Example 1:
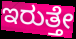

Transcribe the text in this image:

ಇರುತ್ತೇ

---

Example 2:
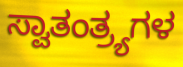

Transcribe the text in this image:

ಸ್ವಾತಂತ್ರ್ಯಗಳ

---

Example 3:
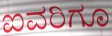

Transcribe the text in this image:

ಐವರಿಗೂ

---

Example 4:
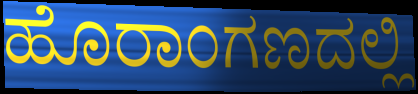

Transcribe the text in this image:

ಹೊರಾಂಗಣದಲ್ಲಿ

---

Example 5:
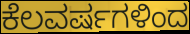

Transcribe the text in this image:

ಕೆಲವರ್ಷಗಳಿಂದ